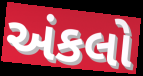
અંકલો